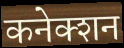
कनेक्शन